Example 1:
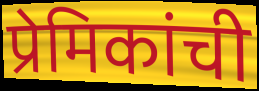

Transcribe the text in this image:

प्रेमिकांची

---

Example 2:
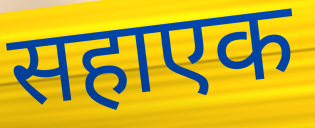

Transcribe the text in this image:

सहाएक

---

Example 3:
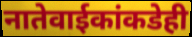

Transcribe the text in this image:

नातेवाईकांकडेही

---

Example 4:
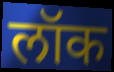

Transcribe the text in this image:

लॉक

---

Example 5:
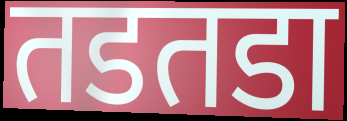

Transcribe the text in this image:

तडतडा